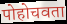
पोहोचवता